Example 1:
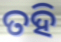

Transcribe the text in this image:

ତହି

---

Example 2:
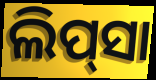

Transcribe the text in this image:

ଲିପ୍‌ସା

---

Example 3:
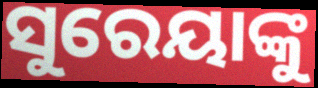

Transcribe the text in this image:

ସୁରେୟାଙ୍କୁ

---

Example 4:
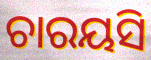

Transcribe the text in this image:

ଚାରୟସି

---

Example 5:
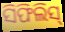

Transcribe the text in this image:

ସିଫିଲିସ୍